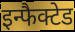
इन्फैक्टेड